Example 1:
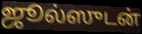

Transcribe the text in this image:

ஜூல்ஸுடன்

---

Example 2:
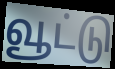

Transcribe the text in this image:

வூட்டு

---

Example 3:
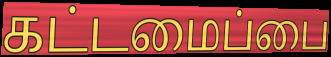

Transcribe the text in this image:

கட்டமைப்பை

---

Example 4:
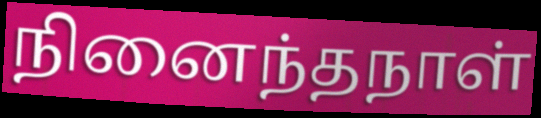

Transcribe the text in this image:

நினைந்தநாள்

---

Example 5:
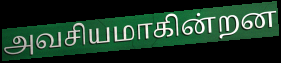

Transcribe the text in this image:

அவசியமாகின்றன